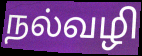
நல்வழி